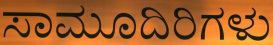
ಸಾಮೂದಿರಿಗಳು